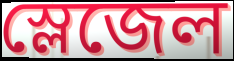
স্লেজেল